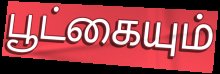
பூட்கையும்